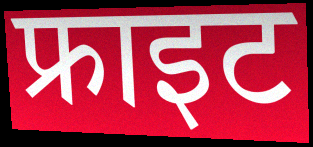
फ्राइट